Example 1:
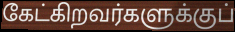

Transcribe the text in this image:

கேட்கிறவர்களுக்குப்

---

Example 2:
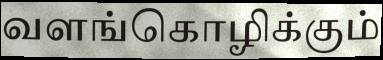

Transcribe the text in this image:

வளங்கொழிக்கும்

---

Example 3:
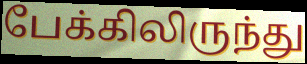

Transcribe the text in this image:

பேக்கிலிருந்து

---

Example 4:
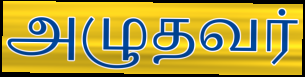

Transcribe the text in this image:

அழுதவர்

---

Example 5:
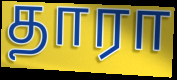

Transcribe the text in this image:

தாரா